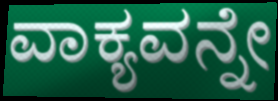
ವಾಕ್ಯವನ್ನೇ